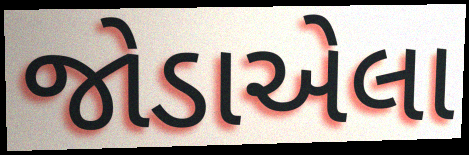
જોડાએલા